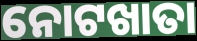
ନୋଟଖାତା